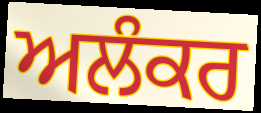
ਅਲੰਕਰ